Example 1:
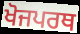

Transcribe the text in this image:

ਖੋਜਪਰਥ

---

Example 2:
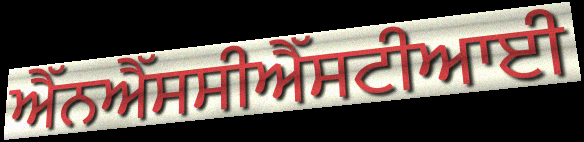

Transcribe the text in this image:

ਐੱਨਐੱਸਸੀਐੱਸਟੀਆਈ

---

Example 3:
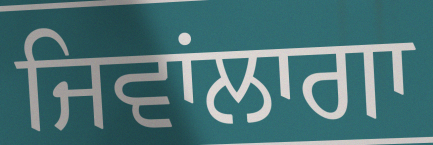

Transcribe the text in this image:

ਜਿਵਾਂਲਾਗਾ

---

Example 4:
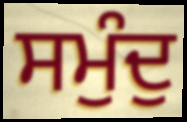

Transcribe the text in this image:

ਸਮੁੰਦੁ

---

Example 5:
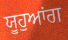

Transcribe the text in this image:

ਯੂਹੁਆਂਗ